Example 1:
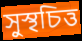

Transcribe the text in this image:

সুস্থচিত্ত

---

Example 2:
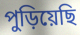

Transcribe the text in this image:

পুড়িয়েছি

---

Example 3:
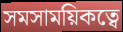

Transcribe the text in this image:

সমসাময়িকত্বে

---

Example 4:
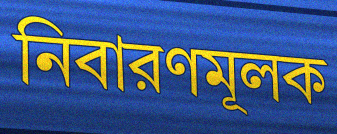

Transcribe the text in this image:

নিবারণমূলক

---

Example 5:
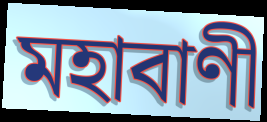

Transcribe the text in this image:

মহাবাণী